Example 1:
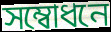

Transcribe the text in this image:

সম্বোধনে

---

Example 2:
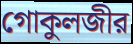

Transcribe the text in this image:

গোকুলজীর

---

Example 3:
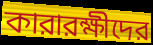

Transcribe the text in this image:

কারারক্ষীদের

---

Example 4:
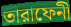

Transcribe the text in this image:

তারাফেনী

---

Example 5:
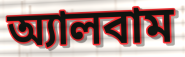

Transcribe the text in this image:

অ্যালবাম